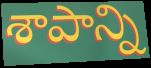
శాపాన్ని